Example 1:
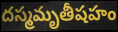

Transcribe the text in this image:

దస్మమృతీషహం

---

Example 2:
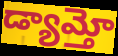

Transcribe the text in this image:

డ్యామ్తో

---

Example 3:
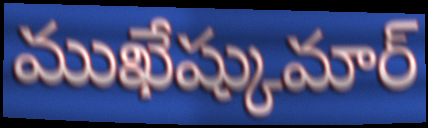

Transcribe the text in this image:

ముఖేష్కుమార్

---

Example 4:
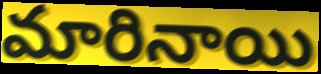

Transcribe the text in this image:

మారినాయి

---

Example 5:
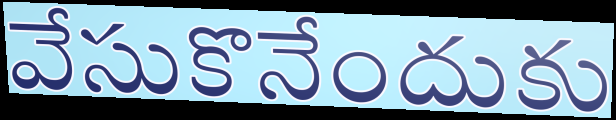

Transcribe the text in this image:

వేసుకొనేందుకు